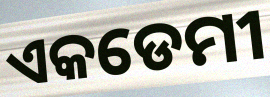
ଏକଡେମୀ